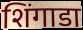
शिंगाडा